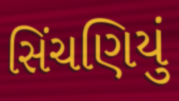
સિંચણિયું